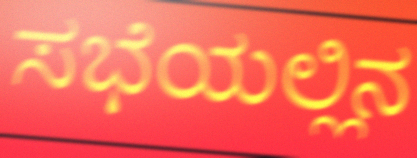
ಸಭೆಯಲ್ಲಿನ